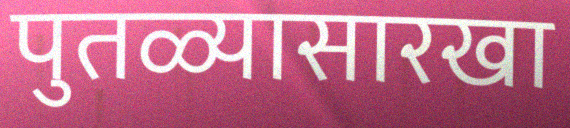
पुतळ्यासारखा